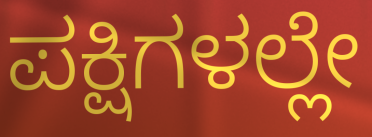
ಪಕ್ಷಿಗಳಲ್ಲೇ